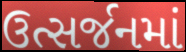
ઉત્સર્જનમાં